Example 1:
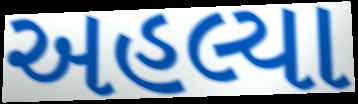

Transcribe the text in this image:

અહલ્યા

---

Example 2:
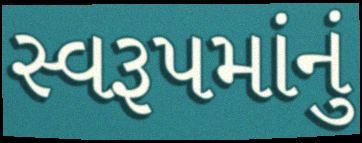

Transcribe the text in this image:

સ્વરૂપમાંનું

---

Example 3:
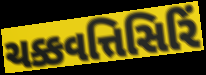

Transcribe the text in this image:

ચક્કવત્તિસિરિં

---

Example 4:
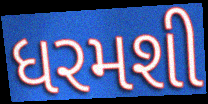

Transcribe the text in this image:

ધરમશી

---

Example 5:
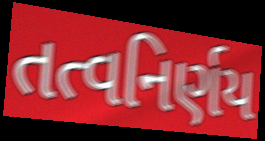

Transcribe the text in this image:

તત્વનિર્ણય